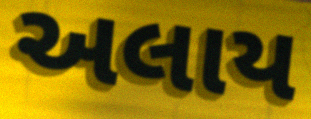
અલાય